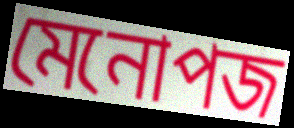
মেনোপজ